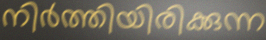
നിർത്തിയിരിക്കുന്ന